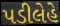
પડીલેહે